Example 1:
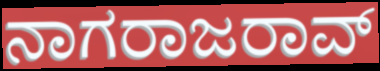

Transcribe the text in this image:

ನಾಗರಾಜರಾವ್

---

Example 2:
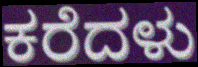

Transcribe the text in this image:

ಕರೆದಳು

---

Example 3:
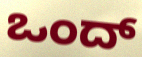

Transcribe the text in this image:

ಒಂದ್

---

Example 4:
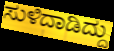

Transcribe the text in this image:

ಸುಳಿದಾಡಿದ್ದು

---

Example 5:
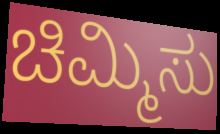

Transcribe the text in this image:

ಚಿಮ್ಮಿಸು